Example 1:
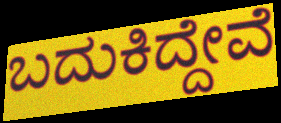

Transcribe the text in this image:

ಬದುಕಿದ್ದೇವೆ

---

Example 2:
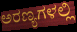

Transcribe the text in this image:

ಅರಣ್ಯಗಳಲ್ಲಿ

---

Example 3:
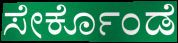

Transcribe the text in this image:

ಸೇರ್ಕೊಂಡೆ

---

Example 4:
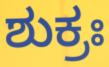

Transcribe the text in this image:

ಶುಕ್ರಃ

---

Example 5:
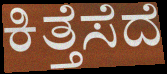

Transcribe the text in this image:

ಕಿತ್ತೆಸೆದೆ